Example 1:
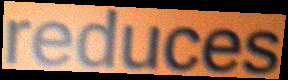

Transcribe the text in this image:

reduces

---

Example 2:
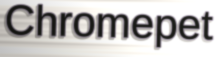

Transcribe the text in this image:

Chromepet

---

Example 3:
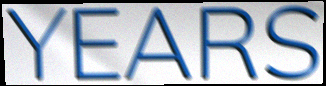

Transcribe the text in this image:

YEARS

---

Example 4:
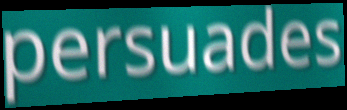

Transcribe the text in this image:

persuades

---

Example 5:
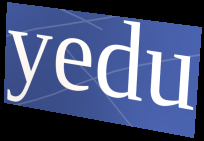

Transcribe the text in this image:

yedu